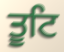
ਤੂਟਿ